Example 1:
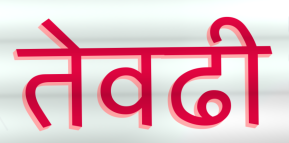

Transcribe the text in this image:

तेवढी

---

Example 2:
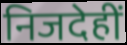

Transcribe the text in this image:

निजदेहीं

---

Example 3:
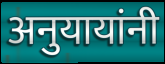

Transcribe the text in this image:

अनुयायांनी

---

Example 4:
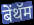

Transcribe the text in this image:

बेंथॅम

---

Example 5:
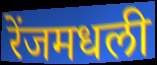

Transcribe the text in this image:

रेंजमधली